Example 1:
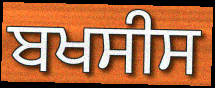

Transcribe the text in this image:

ਬਖਸੀਸ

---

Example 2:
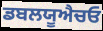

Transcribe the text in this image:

ਡਬਲਯੂਐਚਓ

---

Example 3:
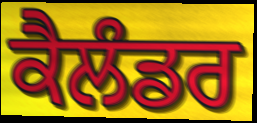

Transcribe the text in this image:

ਕੈਲੰਡਰ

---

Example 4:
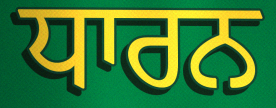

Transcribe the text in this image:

ਧਾਰਨ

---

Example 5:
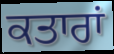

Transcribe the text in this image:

ਕਤਾਰਾਂ